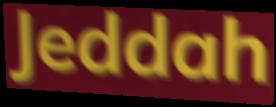
Jeddah